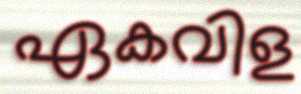
ഏകവിള